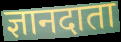
ज्ञानदाता